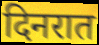
दिनरात